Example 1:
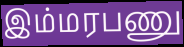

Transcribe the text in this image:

இம்மரபணு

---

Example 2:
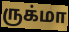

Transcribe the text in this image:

ருக்மா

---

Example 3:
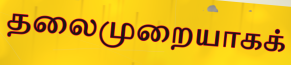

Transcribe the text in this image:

தலைமுறையாகக்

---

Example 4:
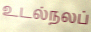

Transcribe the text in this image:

உடல்நலப்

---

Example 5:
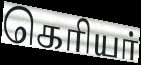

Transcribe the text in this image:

கெரியர்